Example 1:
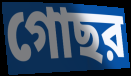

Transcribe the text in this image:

গোছর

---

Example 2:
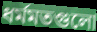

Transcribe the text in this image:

ধর্মমতগুলো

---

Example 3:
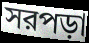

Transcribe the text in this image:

সরপড়া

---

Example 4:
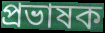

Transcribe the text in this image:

প্রভাষক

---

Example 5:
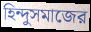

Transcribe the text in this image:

হিন্দুসমাজের